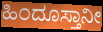
ಹಿಂದೂಸ್ತಾನೀ